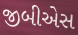
જીબીએસ